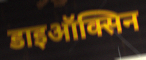
डाइऑक्सिन